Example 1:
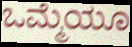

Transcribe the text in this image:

ಒಮ್ಮೆಯೂ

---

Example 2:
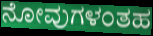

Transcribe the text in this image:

ನೋವುಗಳಂತಹ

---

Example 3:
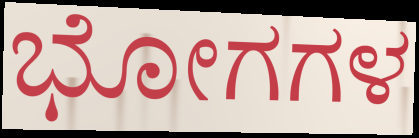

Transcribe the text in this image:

ಭೋಗಗಳ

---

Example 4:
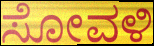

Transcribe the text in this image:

ಸೋವಳಿ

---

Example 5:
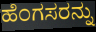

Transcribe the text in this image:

ಹೆಂಗಸರನ್ನು